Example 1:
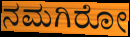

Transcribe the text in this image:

ನಮಗಿರೋ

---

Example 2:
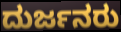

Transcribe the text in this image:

ದುರ್ಜನರು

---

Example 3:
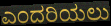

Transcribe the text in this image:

ಎಂದರಿಯಲು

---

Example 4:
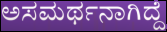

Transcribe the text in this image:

ಅಸಮರ್ಥನಾಗಿದ್ದೆ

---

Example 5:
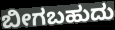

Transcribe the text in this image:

ಬೀಗಬಹುದು